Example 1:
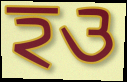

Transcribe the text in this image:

হও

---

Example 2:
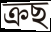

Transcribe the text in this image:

ক্ৰছ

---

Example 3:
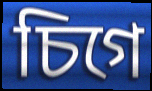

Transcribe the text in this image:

চিগে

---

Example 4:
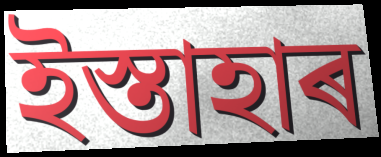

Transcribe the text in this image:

ইস্তাহাৰ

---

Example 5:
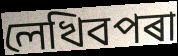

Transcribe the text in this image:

লেখিবপৰা